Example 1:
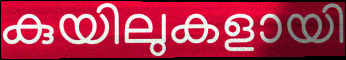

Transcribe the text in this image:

കുയിലുകളായി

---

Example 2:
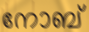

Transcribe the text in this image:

നോബ്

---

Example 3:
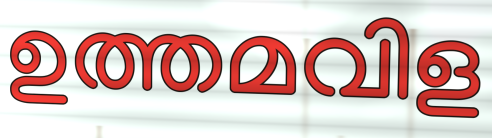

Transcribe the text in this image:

ഉത്തമവിള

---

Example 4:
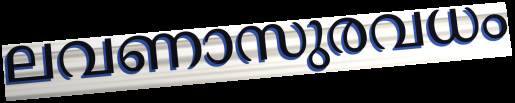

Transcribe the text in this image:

ലവണാസുരവധം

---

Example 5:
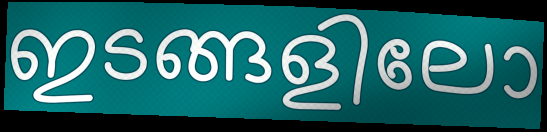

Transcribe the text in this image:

ഇടങ്ങളിലോ